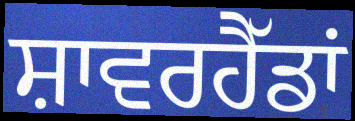
ਸ਼ਾਵਰਹੈੱਡਾਂ